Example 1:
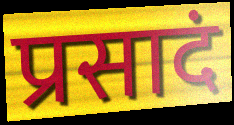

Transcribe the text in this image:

प्रसादं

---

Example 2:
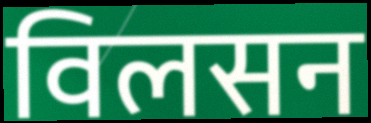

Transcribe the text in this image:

विलसन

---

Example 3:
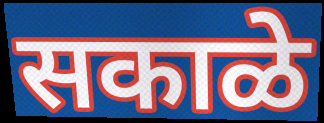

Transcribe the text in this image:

सकाळे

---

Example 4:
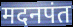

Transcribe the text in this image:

मदनपंत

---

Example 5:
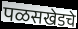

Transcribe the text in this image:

पळसखेडचे